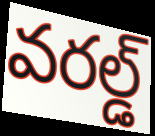
వరల్డ్